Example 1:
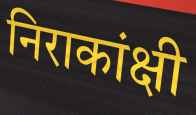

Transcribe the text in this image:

निराकांक्षी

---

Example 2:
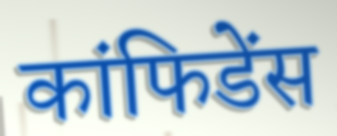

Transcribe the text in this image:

कांफिडेंस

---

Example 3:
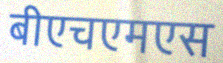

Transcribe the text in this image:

बीएचएमएस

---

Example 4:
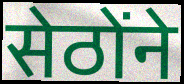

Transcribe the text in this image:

सेठोंने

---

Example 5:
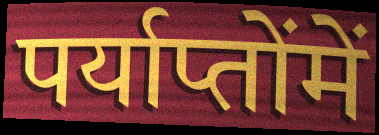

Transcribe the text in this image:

पर्याप्तोंमें